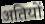
अतियों